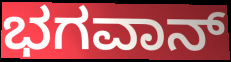
ಭಗವಾನ್